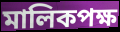
মালিকপক্ষ